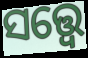
ସତ୍ତ୍ବେ